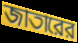
জাতারের